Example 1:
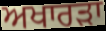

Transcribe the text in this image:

ਅਖਾਰੜਾ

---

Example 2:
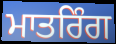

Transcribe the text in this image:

ਮਾਤਰਿੰਗ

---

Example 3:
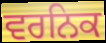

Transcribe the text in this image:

ਵਰਨਿਕ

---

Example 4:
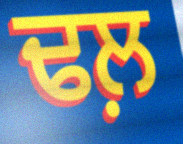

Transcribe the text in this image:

ਢਲ਼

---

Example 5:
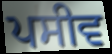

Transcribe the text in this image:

ਪਸੀਵ